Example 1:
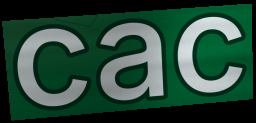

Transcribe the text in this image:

cac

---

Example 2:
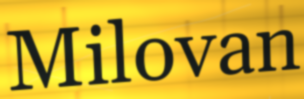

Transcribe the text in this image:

Milovan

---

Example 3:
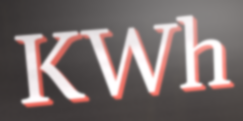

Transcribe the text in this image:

KWh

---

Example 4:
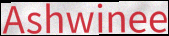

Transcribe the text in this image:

Ashwinee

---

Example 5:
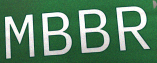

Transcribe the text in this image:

MBBR